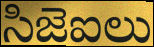
సిజెఐలు